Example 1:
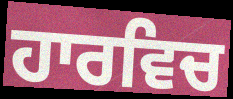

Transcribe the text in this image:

ਹਾਰਵਿਚ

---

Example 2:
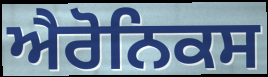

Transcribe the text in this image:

ਐਰੋਨਿਕਸ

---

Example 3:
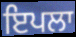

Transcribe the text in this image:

ਇਪਲਾ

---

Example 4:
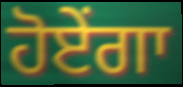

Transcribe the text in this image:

ਹੋਏਂਗਾ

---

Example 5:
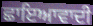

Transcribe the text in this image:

ਛਾਇਆਵਾਦੀ